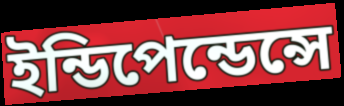
ইন্ডিপেন্ডেন্সে